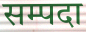
सम्पदा